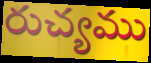
రుచ్యము